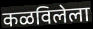
कळविलेला